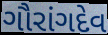
ગૌરાંગદેવ